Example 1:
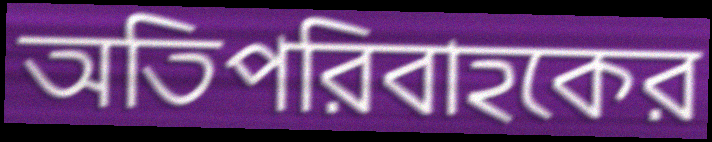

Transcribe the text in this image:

অতিপরিবাহকের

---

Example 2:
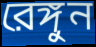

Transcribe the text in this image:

রেঙ্গুন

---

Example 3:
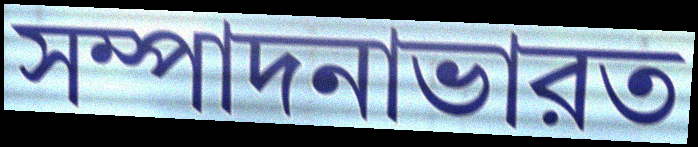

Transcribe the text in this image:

সম্পাদনাভারত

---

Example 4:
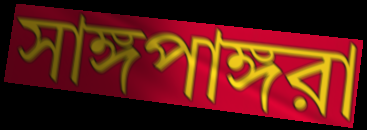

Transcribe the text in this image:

সাঙ্গপাঙ্গরা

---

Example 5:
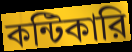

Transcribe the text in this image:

কন্টিকারি